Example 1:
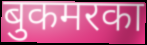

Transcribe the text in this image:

बुकमरका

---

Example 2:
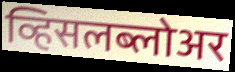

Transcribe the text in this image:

व्हिसलब्लोअर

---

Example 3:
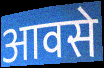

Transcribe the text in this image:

आवसे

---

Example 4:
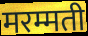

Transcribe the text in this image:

मरम्मती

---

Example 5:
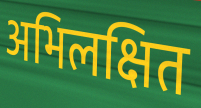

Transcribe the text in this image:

अभिलक्षित